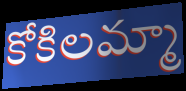
కోకిలమ్మా